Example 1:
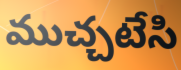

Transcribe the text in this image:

ముచ్చటేసి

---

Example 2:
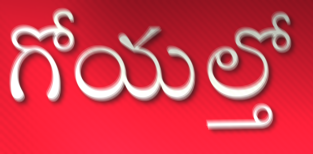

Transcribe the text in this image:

గోయల్తో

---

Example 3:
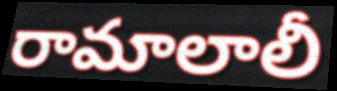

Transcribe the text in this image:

రామాలాలీ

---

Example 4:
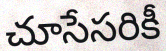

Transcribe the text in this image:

చూసేసరికీ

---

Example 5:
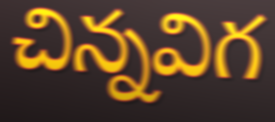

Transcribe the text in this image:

చిన్నవిగ